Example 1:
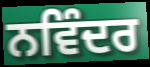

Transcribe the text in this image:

ਨਵਿੰਦਰ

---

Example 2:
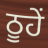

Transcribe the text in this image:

ਠੂਹੇਂ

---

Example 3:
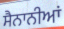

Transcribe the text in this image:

ਸੈਨਾਨੀਆਂ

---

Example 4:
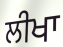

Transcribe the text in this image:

ਲੀਖਾ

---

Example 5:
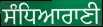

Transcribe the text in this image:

ਸੰਧਿਆਰਾਣੀ